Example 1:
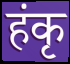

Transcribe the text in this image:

हंकृ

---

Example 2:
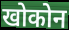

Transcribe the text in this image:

खोकोन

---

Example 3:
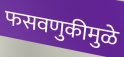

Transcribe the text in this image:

फसवणुकीमुळे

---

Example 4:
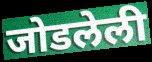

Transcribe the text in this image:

जोडलेली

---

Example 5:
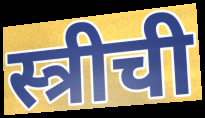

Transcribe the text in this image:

स्त्रीची